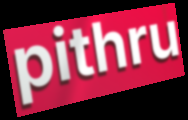
pithru